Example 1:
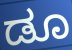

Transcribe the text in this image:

ಡೂ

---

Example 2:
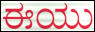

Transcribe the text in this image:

ಈಯು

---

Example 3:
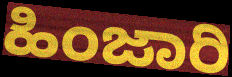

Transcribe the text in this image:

ಹಿಂಜಾರಿ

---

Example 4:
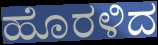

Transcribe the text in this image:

ಹೊರಳಿದ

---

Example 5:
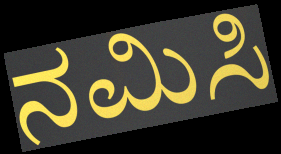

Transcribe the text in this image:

ನಮಿಸಿ